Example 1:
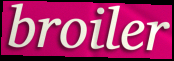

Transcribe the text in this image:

broiler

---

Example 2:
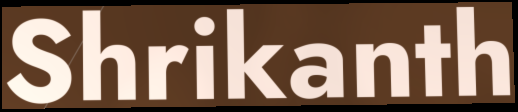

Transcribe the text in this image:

Shrikanth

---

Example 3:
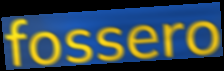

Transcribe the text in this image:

fossero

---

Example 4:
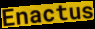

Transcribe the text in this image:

Enactus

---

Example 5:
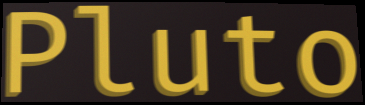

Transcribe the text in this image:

Pluto